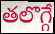
తలొగ్గే